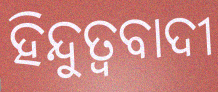
ହିନ୍ଦୁତ୍ୱବାଦୀ